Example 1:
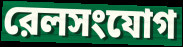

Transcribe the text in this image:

রেলসংযোগ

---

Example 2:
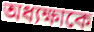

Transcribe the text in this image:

অধ্যক্ষাকে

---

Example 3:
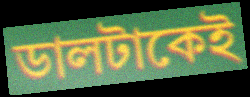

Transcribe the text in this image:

ডালটাকেই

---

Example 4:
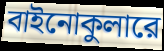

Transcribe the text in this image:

বাইনোকুলারে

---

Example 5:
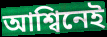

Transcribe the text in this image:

আশ্বিনেই